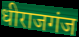
धीराजगंज